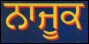
ਨਾਜੂਕ